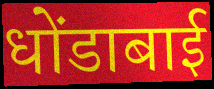
धोंडाबाई